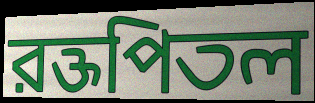
রক্তপিতল